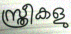
സ്ത്രീകളു